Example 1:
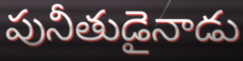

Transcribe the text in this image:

పునీతుడైనాడు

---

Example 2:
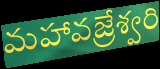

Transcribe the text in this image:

మహావజ్రేశ్వరి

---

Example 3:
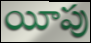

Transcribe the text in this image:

యీపు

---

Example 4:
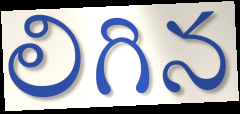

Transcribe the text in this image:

లిగిన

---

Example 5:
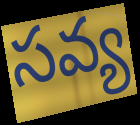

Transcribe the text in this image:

సవ్య